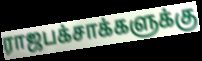
ராஜபக்சாக்களுக்கு